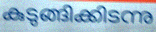
കുടുങ്ങിക്കിടന്നു